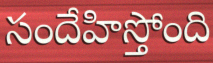
సందేహిస్తోంది